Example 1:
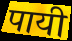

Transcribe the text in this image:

पायी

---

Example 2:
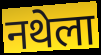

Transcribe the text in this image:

नथेला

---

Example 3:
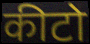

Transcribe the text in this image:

कीटो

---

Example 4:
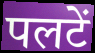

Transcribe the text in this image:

पलटें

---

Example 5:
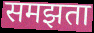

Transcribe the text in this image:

समझता